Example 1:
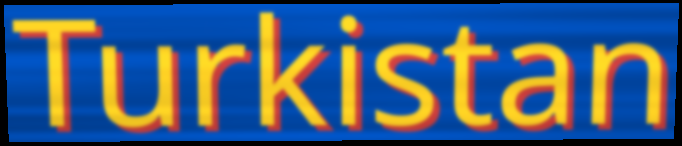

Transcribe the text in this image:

Turkistan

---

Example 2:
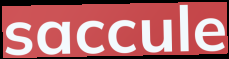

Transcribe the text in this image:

saccule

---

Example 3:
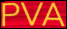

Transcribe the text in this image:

PVA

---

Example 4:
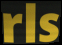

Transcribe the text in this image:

rls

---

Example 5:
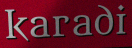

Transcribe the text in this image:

karadi